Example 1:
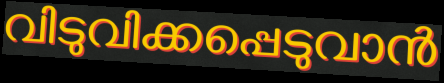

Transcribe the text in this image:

വിടുവിക്കപ്പെടുവാൻ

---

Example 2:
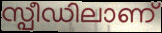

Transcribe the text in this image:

സ്പീഡിലാണ്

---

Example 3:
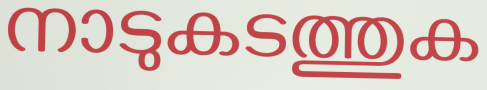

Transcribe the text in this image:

നാടുകടത്തുക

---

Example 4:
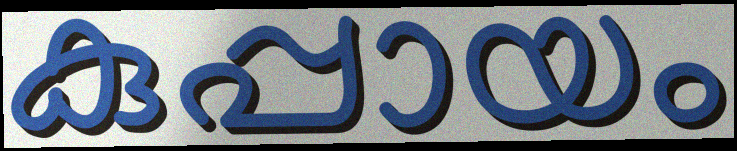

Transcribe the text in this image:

കുപ്പായം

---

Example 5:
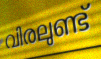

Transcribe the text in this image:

വിരലുണ്ട്